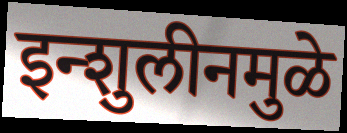
इन्शुलीनमुळे